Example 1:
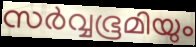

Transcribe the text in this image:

സർവ്വഭൂമിയും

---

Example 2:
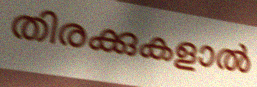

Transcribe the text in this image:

തിരക്കുകളാൽ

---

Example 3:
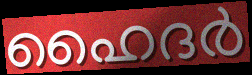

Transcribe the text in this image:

ഹൈദർ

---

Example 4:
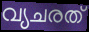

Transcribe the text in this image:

വ്യചരത്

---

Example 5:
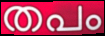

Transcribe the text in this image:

തപം